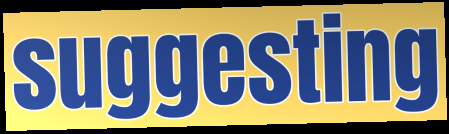
suggesting